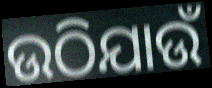
ଉଠିଯାଉଁ